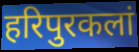
हरिपुरकलां